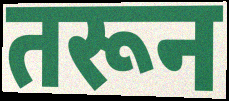
तरून